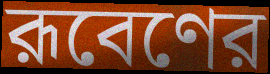
রূবেণের